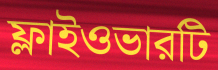
ফ্লাইওভারটি